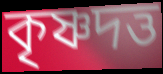
কৃষ্ণদত্ত